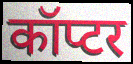
कॉप्टर